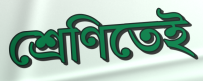
শ্রেণিতেই